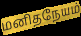
மனிதநேயம்